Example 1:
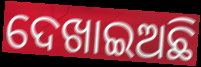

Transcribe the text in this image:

ଦେଖାଇଅଛି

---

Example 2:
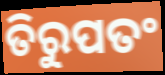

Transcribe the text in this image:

ତିରୁପତଂ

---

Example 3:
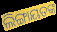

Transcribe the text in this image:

ଲିଙ୍ଗାୟତଙ୍କ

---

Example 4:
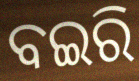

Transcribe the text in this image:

ବଇରି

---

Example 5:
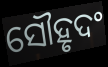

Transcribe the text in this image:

ସୌହୃଦଂ